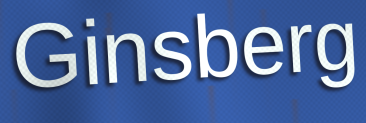
Ginsberg